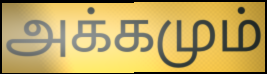
அக்கமும்